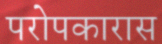
परोपकारास